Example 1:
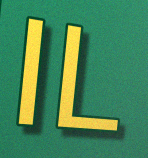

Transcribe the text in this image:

IL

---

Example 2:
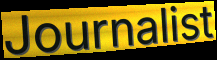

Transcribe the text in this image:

Journalist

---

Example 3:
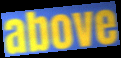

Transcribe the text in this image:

above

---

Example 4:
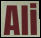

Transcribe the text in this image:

Ali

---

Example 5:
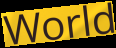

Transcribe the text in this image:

World